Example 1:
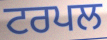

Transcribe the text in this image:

ਟਰਪਲ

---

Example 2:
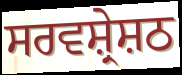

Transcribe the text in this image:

ਸਰਵਸ਼੍ਰੇਸ਼ਠ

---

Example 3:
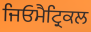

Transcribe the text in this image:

ਜਿਓਮੈਟ੍ਰਿਕਲ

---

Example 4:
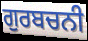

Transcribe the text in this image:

ਗੁਰਬਚਨੀ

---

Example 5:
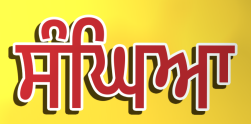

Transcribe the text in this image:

ਸੰਘਿਆ